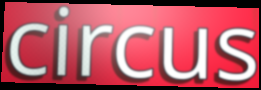
circus